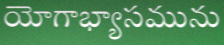
యోగాభ్యాసమును